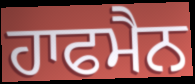
ਹਾਫਮੈਨ